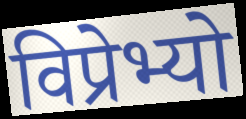
विप्रेभ्यो